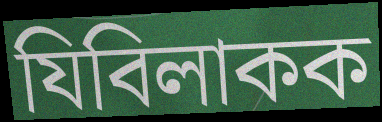
যিবিলাকক